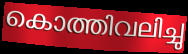
കൊത്തിവലിച്ചു